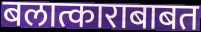
बलात्काराबाबत